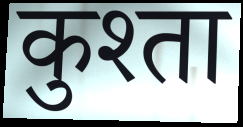
कुश्ता